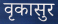
वृकासुर